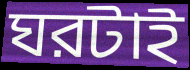
ঘরটাই